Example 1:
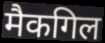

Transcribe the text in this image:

मैकगिल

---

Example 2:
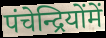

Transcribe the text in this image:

पंचेन्द्रियोंमें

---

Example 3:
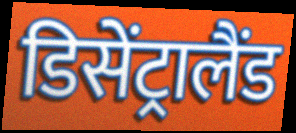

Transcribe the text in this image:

डिसेंट्रालैंड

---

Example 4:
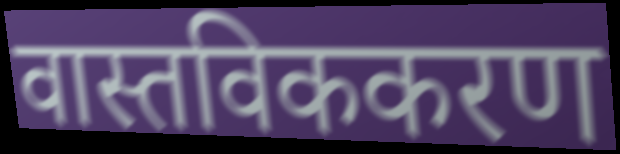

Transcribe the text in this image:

वास्तविककरण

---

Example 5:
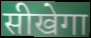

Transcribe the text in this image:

सीखेगा